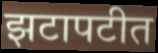
झटापटीत